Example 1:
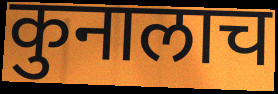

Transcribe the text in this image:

कुनालाच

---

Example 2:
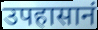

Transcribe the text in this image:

उपहासानं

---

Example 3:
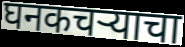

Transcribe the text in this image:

घनकचऱ्याचा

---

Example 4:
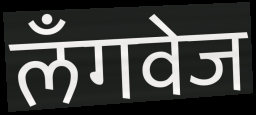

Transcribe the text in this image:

लॅंगवेज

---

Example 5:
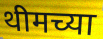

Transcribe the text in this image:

थीमच्या